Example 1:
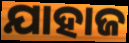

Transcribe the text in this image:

ଯାହାଜ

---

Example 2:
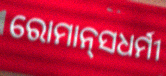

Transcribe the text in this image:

ରୋମାନ୍‍ସଧର୍ମୀ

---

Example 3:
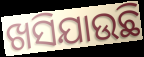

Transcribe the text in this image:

ଖସିଯାଉଛି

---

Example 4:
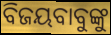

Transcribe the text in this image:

ବିଜୟବାବୁଙ୍କୁ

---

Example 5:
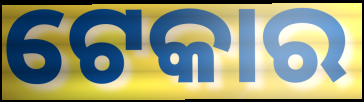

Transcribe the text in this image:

ଟେକାର